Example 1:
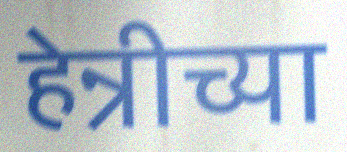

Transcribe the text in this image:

हेन्रीच्या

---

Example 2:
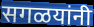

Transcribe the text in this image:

सगळयांनी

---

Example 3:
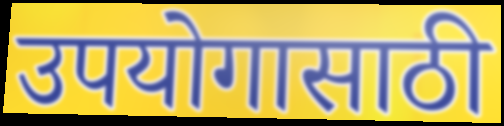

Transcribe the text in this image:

उपयोगासाठी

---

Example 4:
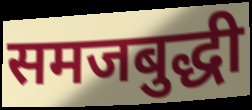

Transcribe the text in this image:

समजबुद्धी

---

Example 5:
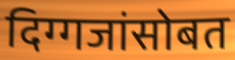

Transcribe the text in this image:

दिग्गजांसोबत